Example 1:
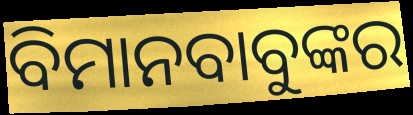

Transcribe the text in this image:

ବିମାନବାବୁଙ୍କର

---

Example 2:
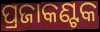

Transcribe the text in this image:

ପ୍ରଜାକଣ୍ଟକ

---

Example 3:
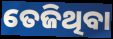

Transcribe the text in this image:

ତେଜିଥିବା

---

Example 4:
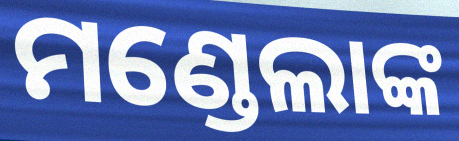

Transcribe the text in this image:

ମଣ୍ଡେଲାଙ୍କ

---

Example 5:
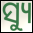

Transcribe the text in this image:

ସ୍ୟୁ